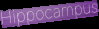
Hippocampus